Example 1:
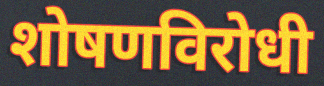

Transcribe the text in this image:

शोषणविरोधी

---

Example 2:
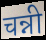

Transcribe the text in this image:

चन्नी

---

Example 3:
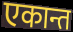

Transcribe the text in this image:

एकान्त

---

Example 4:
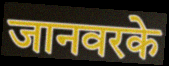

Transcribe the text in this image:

जानवरके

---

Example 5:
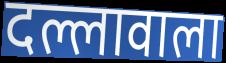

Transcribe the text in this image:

दल्लावाला